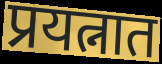
प्रयत्नात